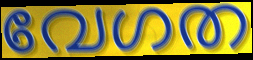
വേഗത